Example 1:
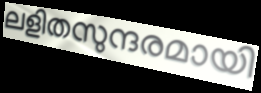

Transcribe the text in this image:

ലളിതസുന്ദരമായി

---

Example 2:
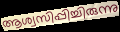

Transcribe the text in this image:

ആശ്വസിപ്പിച്ചിരുന്നു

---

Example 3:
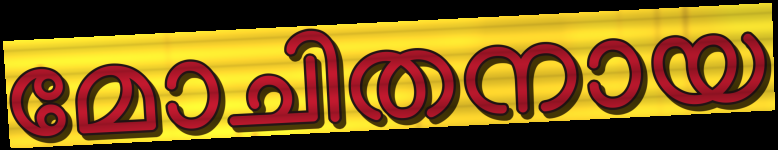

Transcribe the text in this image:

മോചിതനായ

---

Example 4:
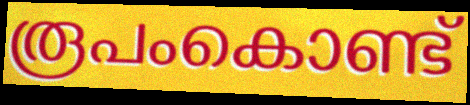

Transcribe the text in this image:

രൂപംകൊണ്ട്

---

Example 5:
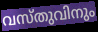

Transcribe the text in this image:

വസ്തുവിനും